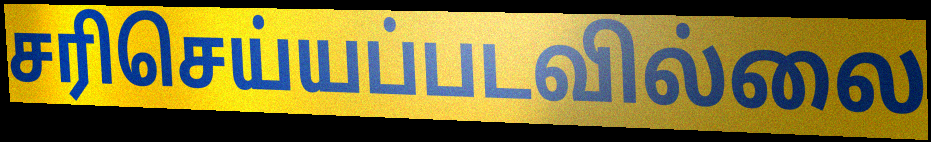
சரிசெய்யப்படவில்லை